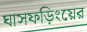
ঘাসফড়িংয়ের